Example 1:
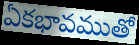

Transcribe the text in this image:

ఏకభావముతో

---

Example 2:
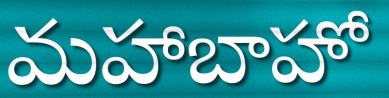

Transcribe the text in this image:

మహాబాహో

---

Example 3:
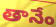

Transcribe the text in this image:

తానేం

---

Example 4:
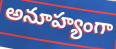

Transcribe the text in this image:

అనూహ్యంగా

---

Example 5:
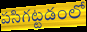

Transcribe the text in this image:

పసిగట్టడంలో